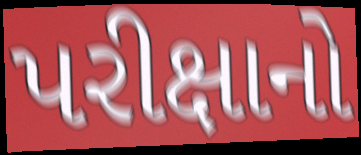
પરીક્ષાનો